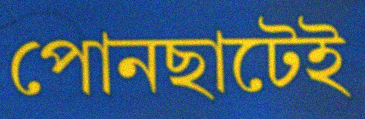
পোনছাটেই